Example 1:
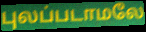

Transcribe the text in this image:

புலப்படாமலே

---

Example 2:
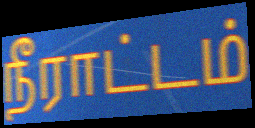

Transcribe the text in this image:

நீராட்டம்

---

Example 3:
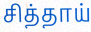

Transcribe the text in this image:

சித்தாய்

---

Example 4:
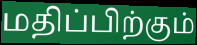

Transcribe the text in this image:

மதிப்பிற்கும்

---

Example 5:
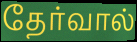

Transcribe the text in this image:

தேர்வால்